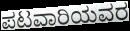
ಪಟವಾರಿಯವರ